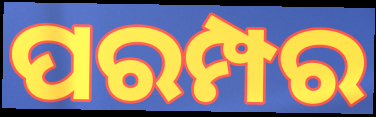
ପରମ୍ପର